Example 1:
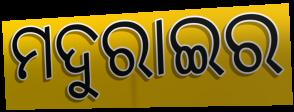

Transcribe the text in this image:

ମଦୁରାଇର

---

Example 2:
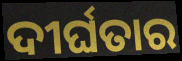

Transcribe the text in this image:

ଦୀର୍ଘତାର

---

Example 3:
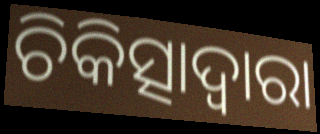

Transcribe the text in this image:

ଚିକିତ୍ସାଦ୍ଵାରା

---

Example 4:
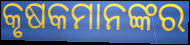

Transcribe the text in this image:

କୃଷକମାନଙ୍କର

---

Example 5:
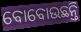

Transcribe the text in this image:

ବୋବୋଉଛନ୍ତି